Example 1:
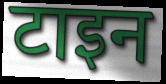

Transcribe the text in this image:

टाइन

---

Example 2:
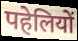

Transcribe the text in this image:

पहेलियों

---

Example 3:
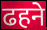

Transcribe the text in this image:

ढहने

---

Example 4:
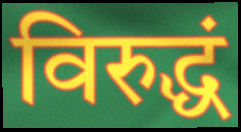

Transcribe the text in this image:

विरुद्धं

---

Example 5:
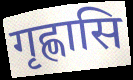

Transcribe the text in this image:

गृह्णासि